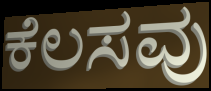
ಕೆಲಸವು